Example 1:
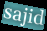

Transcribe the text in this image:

sajid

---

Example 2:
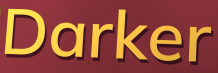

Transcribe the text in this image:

Darker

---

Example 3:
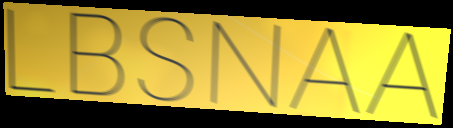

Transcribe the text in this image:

LBSNAA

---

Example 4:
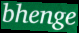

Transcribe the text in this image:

bhenge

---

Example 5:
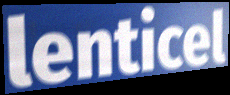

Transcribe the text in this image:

lenticel